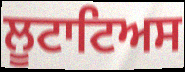
ਲੂਟਾਟਿਅਸ